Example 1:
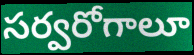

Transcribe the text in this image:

సర్వరోగాలూ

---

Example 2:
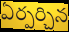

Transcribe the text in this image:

ఏర్పర్చిన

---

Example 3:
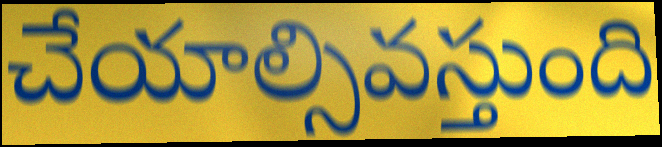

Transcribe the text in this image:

చేయాల్సివస్తుంది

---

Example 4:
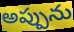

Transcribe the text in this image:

అప్పును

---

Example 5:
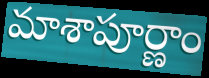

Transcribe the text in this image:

మాశాపూర్ణాం